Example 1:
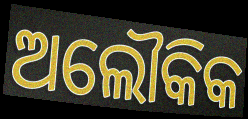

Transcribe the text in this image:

ଅଲୌକିକ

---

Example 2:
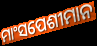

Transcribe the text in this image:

ମାଂସପେଶୀମାନ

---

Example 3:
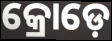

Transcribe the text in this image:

କ୍ରୋଡ଼େ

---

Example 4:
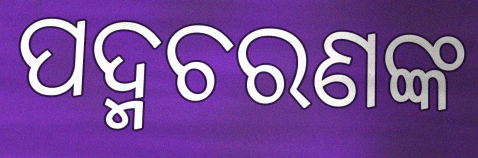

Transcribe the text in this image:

ପଦ୍ମଚରଣଙ୍କ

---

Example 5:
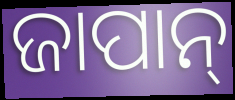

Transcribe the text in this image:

ଜାପାନ୍